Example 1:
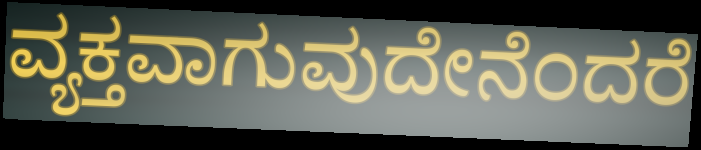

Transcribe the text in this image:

ವ್ಯಕ್ತವಾಗುವುದೇನೆಂದರೆ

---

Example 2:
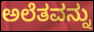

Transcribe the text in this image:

ಅಲೆತವನ್ನು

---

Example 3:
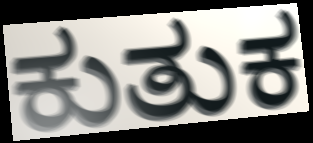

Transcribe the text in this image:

ಕುತುಕ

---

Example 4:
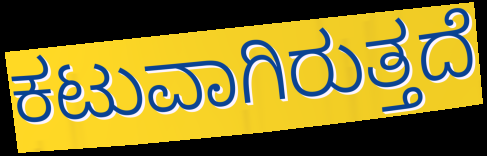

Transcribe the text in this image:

ಕಟುವಾಗಿರುತ್ತದೆ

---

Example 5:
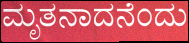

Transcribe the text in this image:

ಮೃತನಾದನೆಂದು